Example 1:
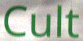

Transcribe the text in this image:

Cult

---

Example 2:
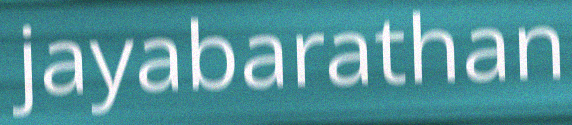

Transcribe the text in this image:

jayabarathan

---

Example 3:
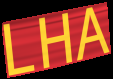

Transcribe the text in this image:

LHA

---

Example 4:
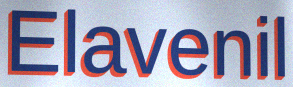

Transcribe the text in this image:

Elavenil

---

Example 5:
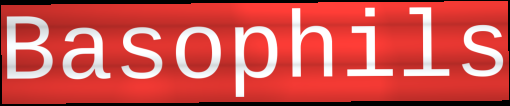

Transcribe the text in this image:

Basophils